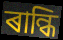
ৰান্ধি